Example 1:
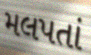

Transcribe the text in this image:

મલપતાં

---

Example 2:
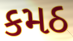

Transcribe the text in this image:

કમઠ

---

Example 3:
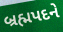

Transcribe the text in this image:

બ્રહ્મપદને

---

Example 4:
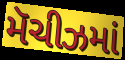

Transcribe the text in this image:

મૅચીઝમાં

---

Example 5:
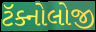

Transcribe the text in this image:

ટૅક્નોલોજી